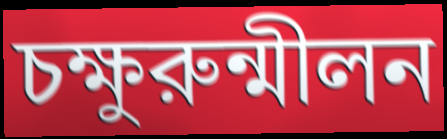
চক্ষুরুন্মীলন